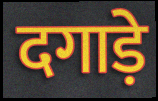
दगाड़े